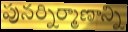
పునర్నిర్మాణాన్ని